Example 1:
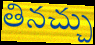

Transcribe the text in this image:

తినచ్చు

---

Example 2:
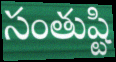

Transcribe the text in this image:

సంతుష్టి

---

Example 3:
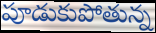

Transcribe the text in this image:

పూడుకుపోతున్న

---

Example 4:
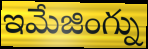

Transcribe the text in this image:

ఇమేజింగ్ను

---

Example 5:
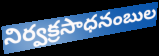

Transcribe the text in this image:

నిర్వక్రసాధనంబుల